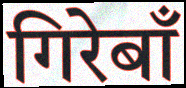
गिरेबाँ